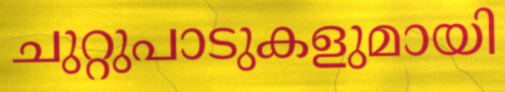
ചുറ്റുപാടുകളുമായി